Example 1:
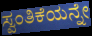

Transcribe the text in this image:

ಸ್ವಂತಿಕೆಯನ್ನೇ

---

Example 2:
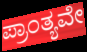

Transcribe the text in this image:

ಪ್ರಾಂತ್ಯವೇ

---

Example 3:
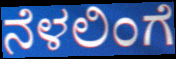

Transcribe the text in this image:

ನೆಳಲಿಂಗೆ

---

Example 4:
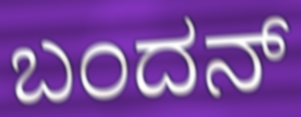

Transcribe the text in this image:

ಬಂದನ್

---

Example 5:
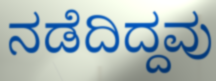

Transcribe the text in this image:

ನಡೆದಿದ್ದವು